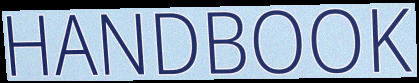
HANDBOOK